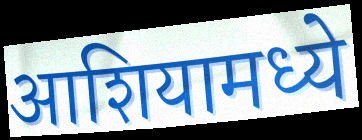
आशियामध्ये